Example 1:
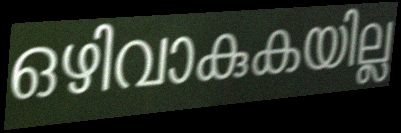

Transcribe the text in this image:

ഒഴിവാകുകയില്ല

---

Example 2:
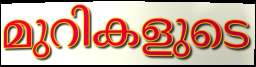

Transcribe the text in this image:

മുറികളുടെ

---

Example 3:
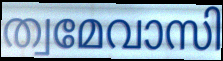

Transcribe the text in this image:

ത്വമേവാസി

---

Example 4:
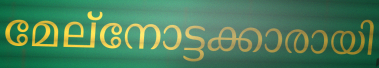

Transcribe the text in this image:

മേല്നോട്ടക്കാരായി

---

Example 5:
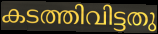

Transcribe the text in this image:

കടത്തിവിട്ടതു